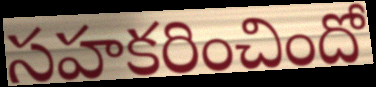
సహకరించిందో